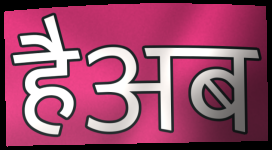
हैअब